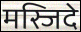
मस्जिदे